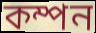
কম্পন